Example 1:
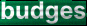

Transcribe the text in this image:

budges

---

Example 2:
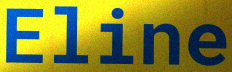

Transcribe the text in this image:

Eline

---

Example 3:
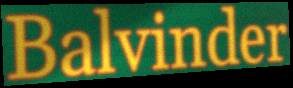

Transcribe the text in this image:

Balvinder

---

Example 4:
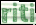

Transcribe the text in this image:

riti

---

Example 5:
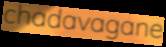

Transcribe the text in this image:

chadavagane